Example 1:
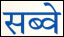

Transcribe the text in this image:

सब्वे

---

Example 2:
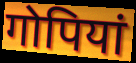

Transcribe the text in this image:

गोपियां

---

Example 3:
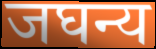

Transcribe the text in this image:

जघन्य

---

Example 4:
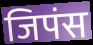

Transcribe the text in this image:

जिपंस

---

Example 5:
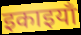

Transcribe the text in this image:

इकाइयाँ